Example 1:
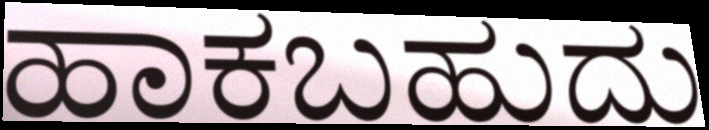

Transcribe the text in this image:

ಹಾಕಬಹುದು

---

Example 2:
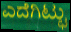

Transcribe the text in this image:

ಎದೆಗಿಟ್ಟು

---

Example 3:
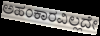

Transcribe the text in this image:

ಅಹಂಕಾರವಿಲ್ಲದೇ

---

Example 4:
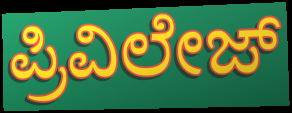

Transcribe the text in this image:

ಪ್ರಿವಿಲೇಜ್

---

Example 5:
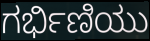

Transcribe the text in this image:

ಗರ್ಭಿಣಿಯು